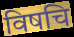
विषचि